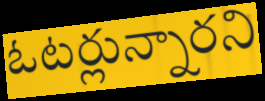
ఓటర్లున్నారని